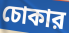
চোকার